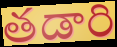
తడారి